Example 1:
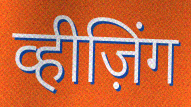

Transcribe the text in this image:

व्हीज़िंग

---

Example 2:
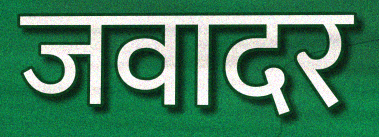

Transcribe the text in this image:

जवादर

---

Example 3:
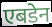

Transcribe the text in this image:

एबडेन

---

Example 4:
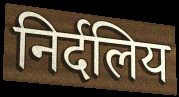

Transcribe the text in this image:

निर्दलिय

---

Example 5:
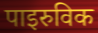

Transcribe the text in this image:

पाइरुविक